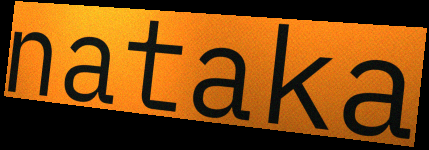
nataka